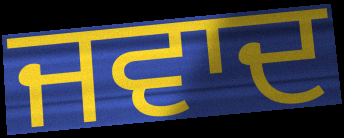
ਜਵਾਦ